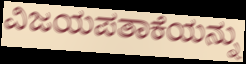
ವಿಜಯಪತಾಕೆಯನ್ನು